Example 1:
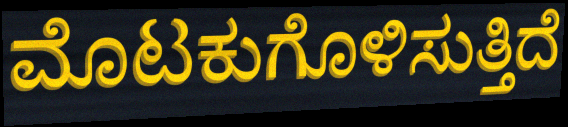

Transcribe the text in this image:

ಮೊಟಕುಗೊಳಿಸುತ್ತಿದೆ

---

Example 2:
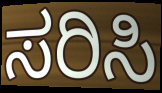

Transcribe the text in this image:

ಸರಿಸಿ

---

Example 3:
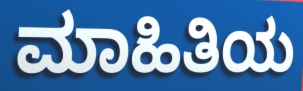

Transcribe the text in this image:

ಮಾಹಿತಿಯ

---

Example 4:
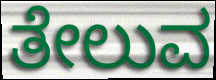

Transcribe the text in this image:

ತೇಲುವ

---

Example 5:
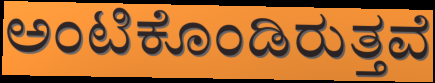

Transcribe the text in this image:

ಅಂಟಿಕೊಂಡಿರುತ್ತವೆ